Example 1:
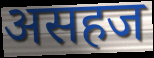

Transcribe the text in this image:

असहज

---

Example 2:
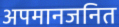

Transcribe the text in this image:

अपमानजनित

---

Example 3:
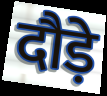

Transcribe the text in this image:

दौड़े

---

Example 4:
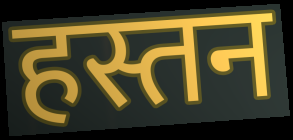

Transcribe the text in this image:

हस्तन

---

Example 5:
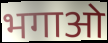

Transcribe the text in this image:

भगाओ